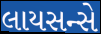
લાયસન્સે